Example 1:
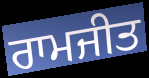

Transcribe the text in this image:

ਰਾਮਜੀਤ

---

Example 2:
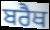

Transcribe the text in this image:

ਬਰੈਥ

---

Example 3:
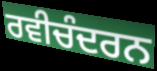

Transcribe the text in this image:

ਰਵੀਚੰਦਰਨ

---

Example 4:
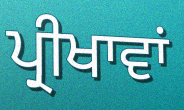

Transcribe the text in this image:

ਪ੍ਰੀਖਾਵਾਂ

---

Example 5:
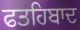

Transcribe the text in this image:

ਫਤਹਿਬਾਦ